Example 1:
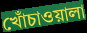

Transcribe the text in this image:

খোঁচাওয়ালা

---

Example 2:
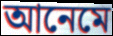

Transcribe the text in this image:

আনেমে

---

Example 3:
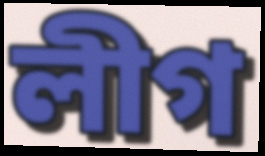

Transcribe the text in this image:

লীগ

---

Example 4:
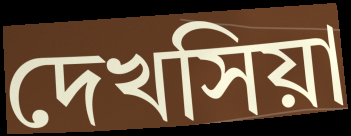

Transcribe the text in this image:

দেখসিয়া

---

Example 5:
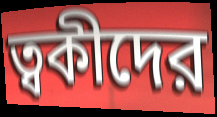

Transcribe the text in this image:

ত্বকীদের